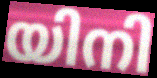
യിനി